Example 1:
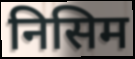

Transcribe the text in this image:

निसिम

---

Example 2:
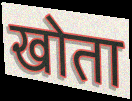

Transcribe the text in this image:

खोता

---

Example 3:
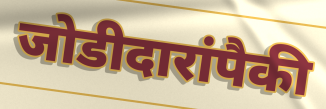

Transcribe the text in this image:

जोडीदारांपैकी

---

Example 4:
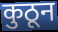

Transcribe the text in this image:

कुठून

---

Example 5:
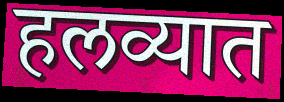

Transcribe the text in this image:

हलव्यात